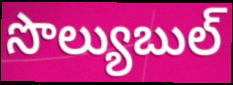
సొల్యుబుల్